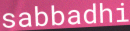
sabbadhi